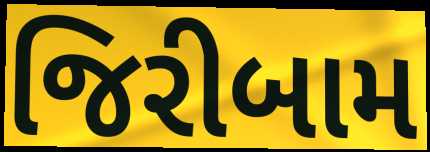
જિરીબામ